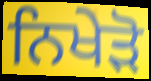
ਨਿਖੇੜੋ